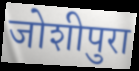
जोशीपुरा